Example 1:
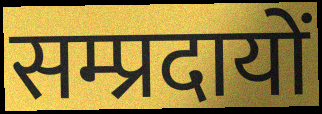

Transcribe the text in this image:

सम्प्रदायों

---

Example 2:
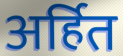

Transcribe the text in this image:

अर्हित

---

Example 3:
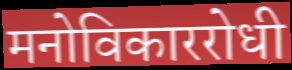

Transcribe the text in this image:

मनोविकाररोधी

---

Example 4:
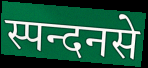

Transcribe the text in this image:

स्पन्दनसे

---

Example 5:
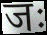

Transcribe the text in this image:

जः